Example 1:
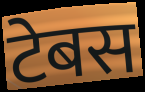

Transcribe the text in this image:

टेबस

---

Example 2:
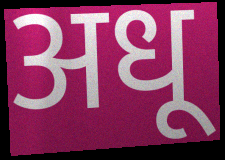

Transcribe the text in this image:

अधू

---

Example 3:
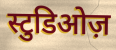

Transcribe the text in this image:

स्टुडिओज़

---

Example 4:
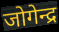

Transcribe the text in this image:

जोगेन्द्र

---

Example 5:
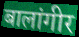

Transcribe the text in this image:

बालांगीर